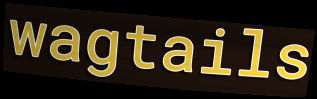
wagtails